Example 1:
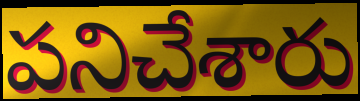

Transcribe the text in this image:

పనిచేశారు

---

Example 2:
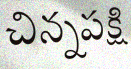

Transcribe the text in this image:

చిన్నపక్షి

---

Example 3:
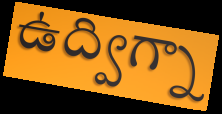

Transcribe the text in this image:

ఉద్విగ్నా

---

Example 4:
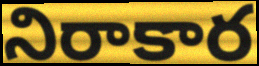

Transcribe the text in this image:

నిరాకార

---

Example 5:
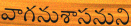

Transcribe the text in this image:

వాగనుశాసనుని